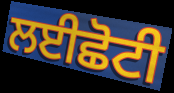
ਲਈਛੋਟੀ